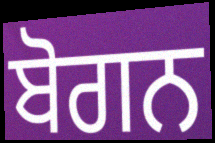
ਬੋਗਨ